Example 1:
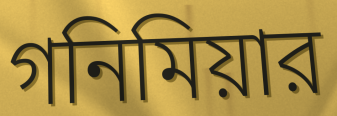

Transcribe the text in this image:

গনিমিয়ার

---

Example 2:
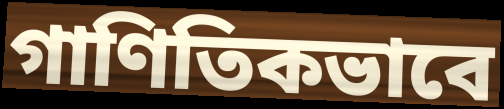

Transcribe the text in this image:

গাণিতিকভাবে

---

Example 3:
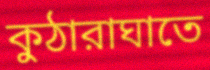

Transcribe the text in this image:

কুঠারাঘাতে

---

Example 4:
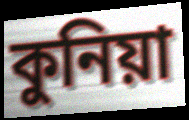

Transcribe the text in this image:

কুনিয়া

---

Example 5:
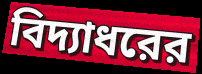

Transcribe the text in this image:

বিদ্যাধরের